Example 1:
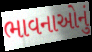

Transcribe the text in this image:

ભાવનાઓનું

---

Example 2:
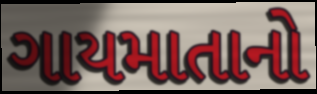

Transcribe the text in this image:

ગાયમાતાનો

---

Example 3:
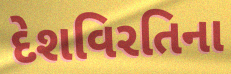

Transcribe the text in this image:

દેશવિરતિના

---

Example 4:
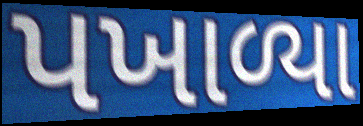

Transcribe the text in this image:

પખાળ્યા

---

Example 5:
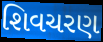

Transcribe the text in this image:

શિવચરણ